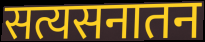
सत्यसनातन